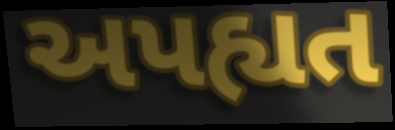
અપહ્યત